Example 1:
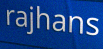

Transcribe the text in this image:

rajhans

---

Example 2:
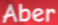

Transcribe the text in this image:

Aber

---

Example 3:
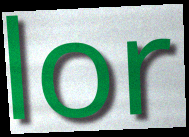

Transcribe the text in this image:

lor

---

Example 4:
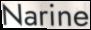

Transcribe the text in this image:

Narine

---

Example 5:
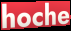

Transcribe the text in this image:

hoche